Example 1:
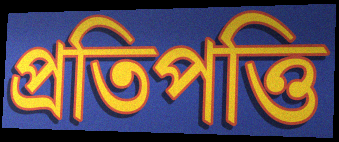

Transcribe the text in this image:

প্ৰতিপত্তি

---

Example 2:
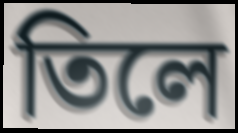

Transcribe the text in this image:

তিলে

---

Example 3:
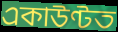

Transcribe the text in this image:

একাউণ্টত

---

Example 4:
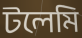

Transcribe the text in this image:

টলেমি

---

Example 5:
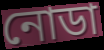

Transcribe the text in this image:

নোডা